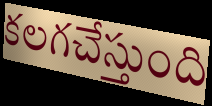
కలగచేస్తుంది